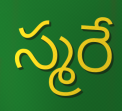
స్మరే